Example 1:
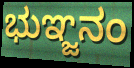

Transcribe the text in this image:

ಭುಞ್ಜನಂ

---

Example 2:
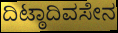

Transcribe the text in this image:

ದಿಟ್ಠಾದಿವಸೇನ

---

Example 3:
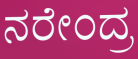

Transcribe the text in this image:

ನರೇಂದ್ರ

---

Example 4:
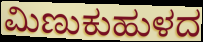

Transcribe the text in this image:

ಮಿಣುಕುಹುಳದ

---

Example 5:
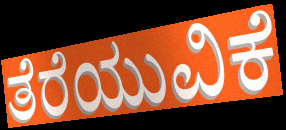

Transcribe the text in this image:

ತೆರೆಯುವಿಕೆ